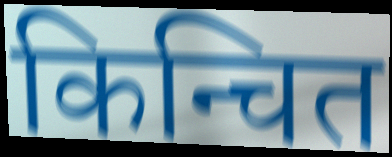
किन्चित